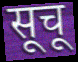
सूचू